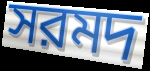
সরমদ